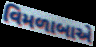
વિમળાબાએ